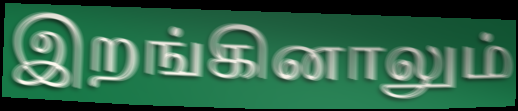
இறங்கினாலும்